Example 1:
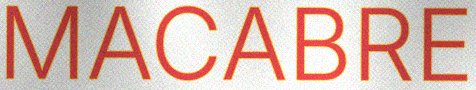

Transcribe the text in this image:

MACABRE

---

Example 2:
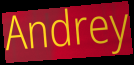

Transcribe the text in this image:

Andrey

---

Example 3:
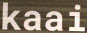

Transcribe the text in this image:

kaai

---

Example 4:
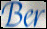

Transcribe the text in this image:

Ber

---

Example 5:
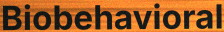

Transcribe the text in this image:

Biobehavioral